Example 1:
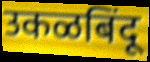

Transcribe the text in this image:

उकळबिंदू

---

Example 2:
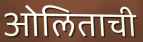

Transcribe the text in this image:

ओलिताची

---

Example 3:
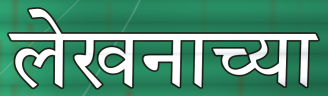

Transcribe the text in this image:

लेखनाच्या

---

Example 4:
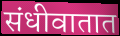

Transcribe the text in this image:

संधीवातात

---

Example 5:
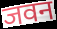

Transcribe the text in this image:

जवन